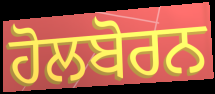
ਹੋਲਬੋਰਨ